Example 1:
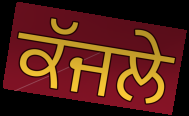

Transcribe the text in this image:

ਕੱਜਲੇ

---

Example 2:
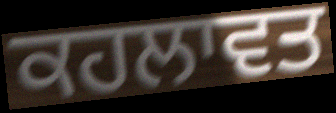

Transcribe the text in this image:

ਕਹਲਾਵਤ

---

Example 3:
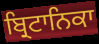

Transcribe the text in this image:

ਬ੍ਰਿਟਾਨਿਕਾ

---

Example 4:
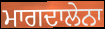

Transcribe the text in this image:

ਮਾਗਦਾਲੇਨਾ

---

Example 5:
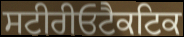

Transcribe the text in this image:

ਸਟੀਰੀਓਟੈਕਟਿਕ